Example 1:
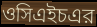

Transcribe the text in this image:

ওসিএইচএর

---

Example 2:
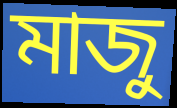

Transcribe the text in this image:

মাজু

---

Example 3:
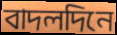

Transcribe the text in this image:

বাদলদিনে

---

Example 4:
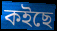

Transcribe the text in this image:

কইছে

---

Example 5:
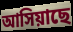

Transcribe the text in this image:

আসিয়াছে